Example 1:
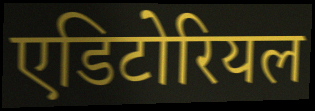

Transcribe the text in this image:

एडिटोरियल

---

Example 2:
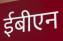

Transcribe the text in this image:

ईबीएन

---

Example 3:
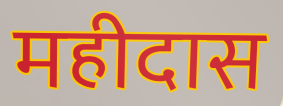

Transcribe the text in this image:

महीदास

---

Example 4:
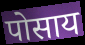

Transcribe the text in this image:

पोसाय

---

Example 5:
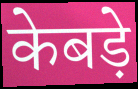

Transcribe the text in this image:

केबड़े